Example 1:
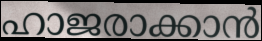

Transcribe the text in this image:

ഹാജരാക്കാൻ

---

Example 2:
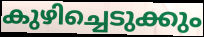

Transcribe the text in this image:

കുഴിച്ചെടുക്കും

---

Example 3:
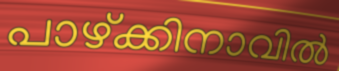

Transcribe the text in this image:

പാഴ്ക്കിനാവിൽ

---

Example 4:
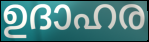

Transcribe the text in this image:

ഉദാഹര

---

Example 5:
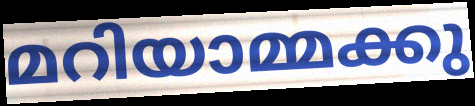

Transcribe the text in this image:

മറിയാമ്മക്കു